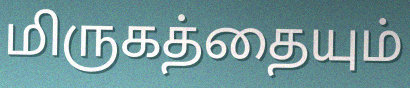
மிருகத்தையும்